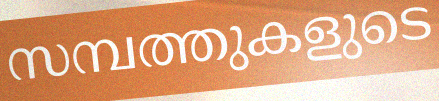
സമ്പത്തുകളുടെ